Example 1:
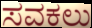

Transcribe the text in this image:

ಸವಕಲು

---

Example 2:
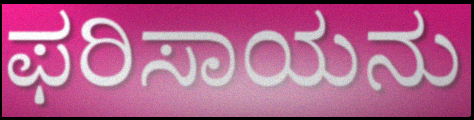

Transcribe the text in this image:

ಫರಿಸಾಯನು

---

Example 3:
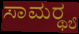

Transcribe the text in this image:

ಸಾಮರ್‍ಥ್ಯ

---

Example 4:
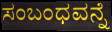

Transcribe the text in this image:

ಸಂಬಂಧವನ್ನೆ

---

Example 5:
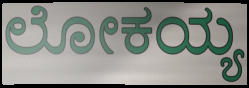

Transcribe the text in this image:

ಲೋಕಯ್ಯ